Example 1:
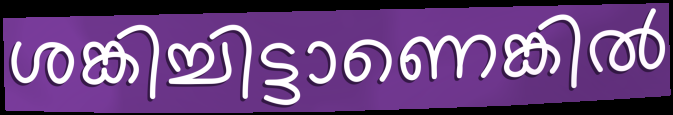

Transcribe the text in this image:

ശങ്കിച്ചിട്ടാണെങ്കിൽ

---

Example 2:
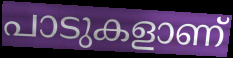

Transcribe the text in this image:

പാടുകളാണ്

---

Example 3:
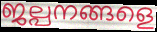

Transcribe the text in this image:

ജല്പനങ്ങളെ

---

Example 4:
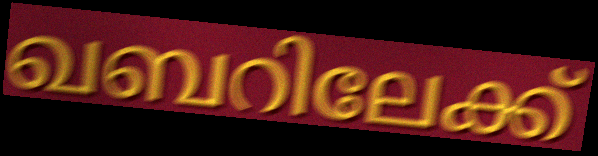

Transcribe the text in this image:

ഖബറിലേക്ക്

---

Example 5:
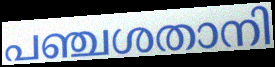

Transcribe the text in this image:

പഞ്ചശതാനി